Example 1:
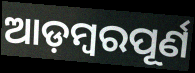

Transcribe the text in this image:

ଆଡ଼ମ୍ବରପୂର୍ଣ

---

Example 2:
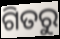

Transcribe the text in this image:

ଗିତରୁ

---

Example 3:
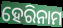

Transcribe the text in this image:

ହେରିନାମ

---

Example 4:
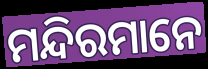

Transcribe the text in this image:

ମନ୍ଦିରମାନେ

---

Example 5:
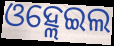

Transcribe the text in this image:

ଓହ୍ଲେଇଲ